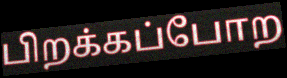
பிறக்கப்போற